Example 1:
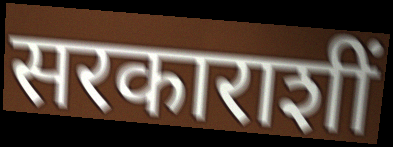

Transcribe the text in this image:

सरकाराशीं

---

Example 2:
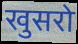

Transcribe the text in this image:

खुसरो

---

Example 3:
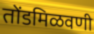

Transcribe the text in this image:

तोंडमिळवणी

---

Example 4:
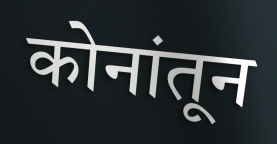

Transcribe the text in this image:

कोनांतून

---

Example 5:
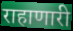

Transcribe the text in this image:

राहाणारी